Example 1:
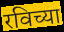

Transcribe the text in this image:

रविच्या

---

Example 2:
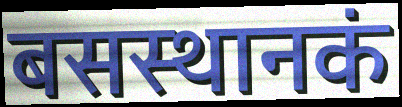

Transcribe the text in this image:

बसस्थानकं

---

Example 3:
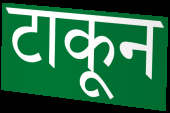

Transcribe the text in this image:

टाकून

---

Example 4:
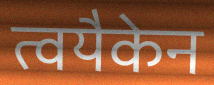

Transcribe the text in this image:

त्वयैकेन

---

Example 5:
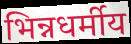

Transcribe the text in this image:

भिन्नधर्मीय